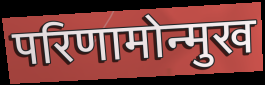
परिणामोन्मुख